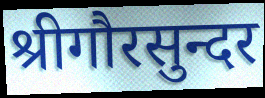
श्रीगौरसुन्दर